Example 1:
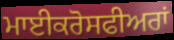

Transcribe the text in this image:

ਮਾਈਕਰੋਸਫੀਅਰਾਂ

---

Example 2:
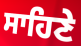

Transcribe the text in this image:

ਸਾਹਿਣੇ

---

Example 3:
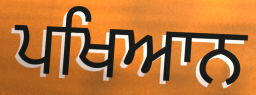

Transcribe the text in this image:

ਪਖਿਆਨ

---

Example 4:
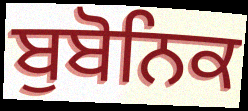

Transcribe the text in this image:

ਬੁਬੋਨਿਕ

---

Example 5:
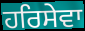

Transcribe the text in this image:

ਹਰਿਸੇਵਾ